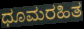
ಧೂಮರಹಿತ